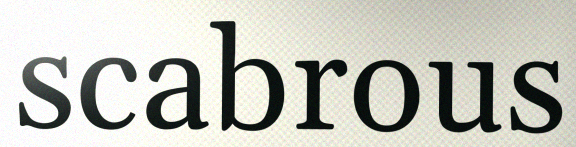
scabrous